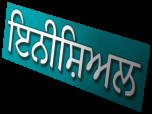
ਇਨੀਸ਼ਿਅਲ